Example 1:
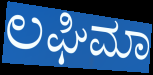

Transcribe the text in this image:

ಲಘಿಮಾ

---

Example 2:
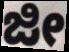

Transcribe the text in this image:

ಜೀ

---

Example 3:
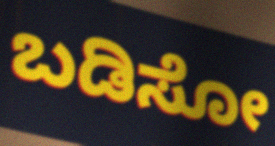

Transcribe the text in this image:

ಬಡಿಸೋ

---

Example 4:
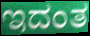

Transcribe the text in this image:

ಇದಂತ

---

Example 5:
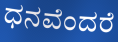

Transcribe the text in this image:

ಧನವೆಂದರೆ